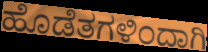
ಹೊಡೆತಗಳಿಂದಾಗಿ